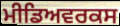
ਮੀਡਿਅਵਰਕਸ